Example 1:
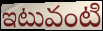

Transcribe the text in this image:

ఇటువంటి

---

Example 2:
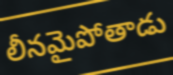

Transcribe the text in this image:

లీనమైపోతాడు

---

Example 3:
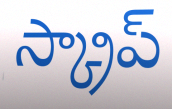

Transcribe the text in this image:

స్క్రాప్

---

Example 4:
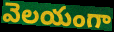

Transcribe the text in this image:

వెలయంగా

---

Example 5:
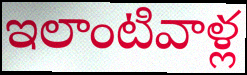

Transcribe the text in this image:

ఇలాంటివాళ్ల